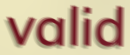
valid